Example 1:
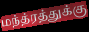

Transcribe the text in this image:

மந்த்ரத்துக்கு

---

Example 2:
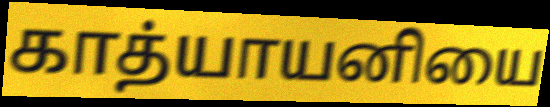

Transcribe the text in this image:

காத்யாயனியை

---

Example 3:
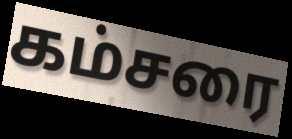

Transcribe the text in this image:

கம்சரை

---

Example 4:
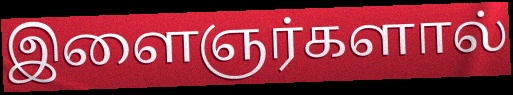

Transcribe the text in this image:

இளைஞர்களால்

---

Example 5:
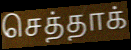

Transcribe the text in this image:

செத்தாக்